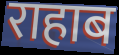
राहाब